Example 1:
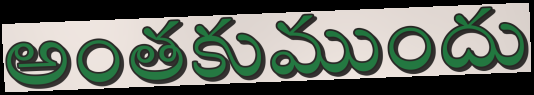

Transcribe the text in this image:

అంతకుముందు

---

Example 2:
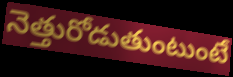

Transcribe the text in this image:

నెత్తురోడుతుంటుంటే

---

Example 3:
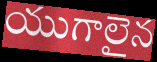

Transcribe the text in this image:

యుగాలైన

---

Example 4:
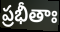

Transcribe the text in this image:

ప్రభీతాః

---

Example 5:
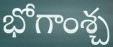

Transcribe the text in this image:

భోగాంశ్చ